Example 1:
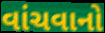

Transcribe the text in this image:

વાંચવાનો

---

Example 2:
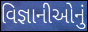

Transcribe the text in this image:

વિજ્ઞાનીઓનું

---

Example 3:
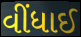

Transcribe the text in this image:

વીંધાઈ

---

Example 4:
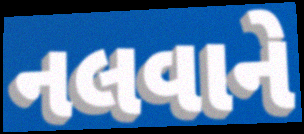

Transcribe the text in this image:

નલવાને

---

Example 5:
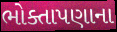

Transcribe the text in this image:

ભોક્તાપણાના